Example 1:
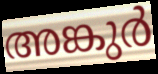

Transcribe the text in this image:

അങ്കുർ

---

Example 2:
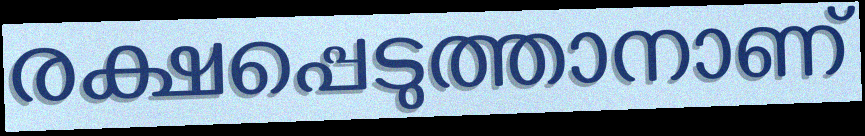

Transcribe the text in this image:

രക്ഷപ്പെടുത്താനാണ്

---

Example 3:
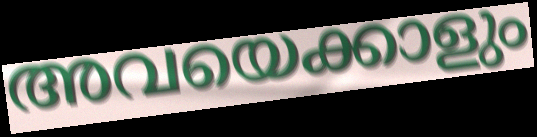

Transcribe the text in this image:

അവയെക്കാളും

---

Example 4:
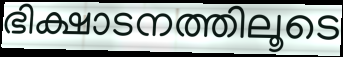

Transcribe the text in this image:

ഭിക്ഷാടനത്തിലൂടെ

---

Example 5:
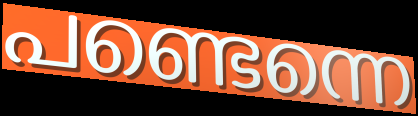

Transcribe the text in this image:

പണ്ടെന്നെ